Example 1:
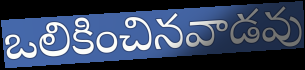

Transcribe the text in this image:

ఒలికించినవాడవు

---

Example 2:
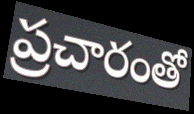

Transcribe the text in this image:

ప్రచారంతో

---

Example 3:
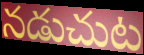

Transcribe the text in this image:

నడుచుట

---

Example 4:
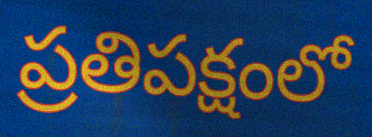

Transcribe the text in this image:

ప్రతిపక్షంలో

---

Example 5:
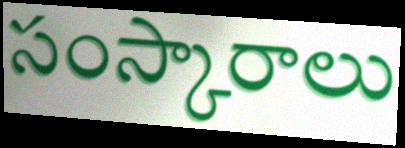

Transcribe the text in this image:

సంస్కారాలు